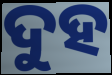
ଦୁହ